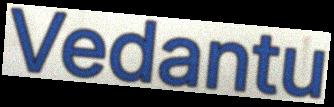
Vedantu